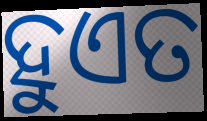
ହୁଏତ